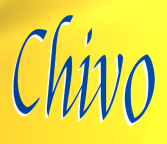
Chivo